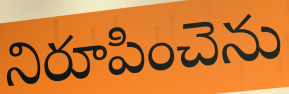
నిరూపించెను